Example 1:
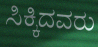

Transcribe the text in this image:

ಸಿಕ್ಕಿದವರು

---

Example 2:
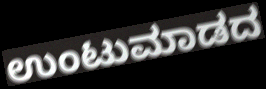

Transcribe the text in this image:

ಉಂಟುಮಾಡದ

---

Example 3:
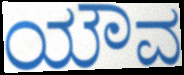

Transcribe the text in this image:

ಯೌವ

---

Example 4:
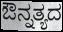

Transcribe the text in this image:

ಔನ್ನತ್ಯದ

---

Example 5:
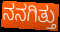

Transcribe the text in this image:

ನನಗಿತ್ತು